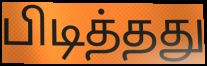
பிடித்தது